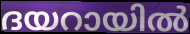
ദയറായിൽ